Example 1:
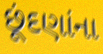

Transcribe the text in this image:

છૂંદણાંના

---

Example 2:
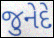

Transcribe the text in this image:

જુનેદે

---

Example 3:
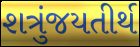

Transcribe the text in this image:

શત્રુંજયતીર્થ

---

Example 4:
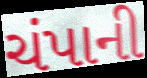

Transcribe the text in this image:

ચંપાની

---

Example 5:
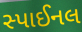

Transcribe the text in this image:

સ્પાઈનલ